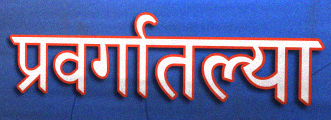
प्रवर्गातल्या